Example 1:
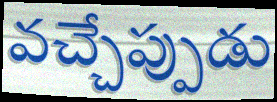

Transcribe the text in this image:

వచ్చేప్పుడు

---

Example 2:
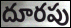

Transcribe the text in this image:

దూరపు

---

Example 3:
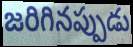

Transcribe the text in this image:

జరిగినప్పుడు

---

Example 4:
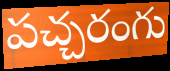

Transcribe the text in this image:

పచ్చరంగు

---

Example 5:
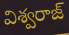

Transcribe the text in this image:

విశ్వరాజ్